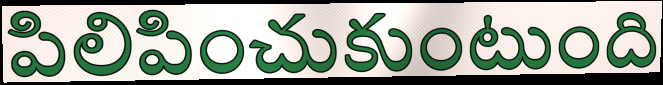
పిలిపించుకుంటుంది